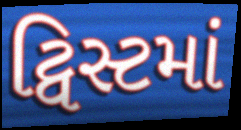
ટ્વિસ્ટમાં